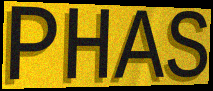
PHAS